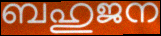
ബഹുജന